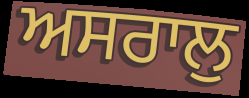
ਅਸਰਾਲੁ